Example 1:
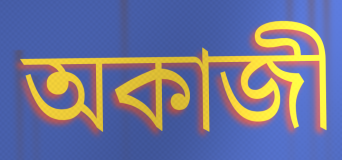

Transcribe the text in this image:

অকাজী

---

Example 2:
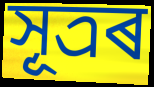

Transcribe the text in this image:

সূত্ৰৰ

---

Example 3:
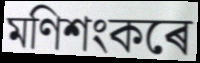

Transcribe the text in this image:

মণিশংকৰে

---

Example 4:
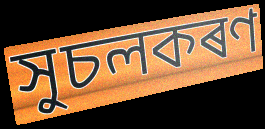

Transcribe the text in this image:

সুচলকৰণ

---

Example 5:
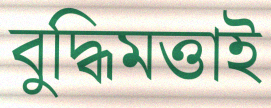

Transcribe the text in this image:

বুদ্ধিমত্তাই